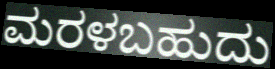
ಮರಳಬಹುದು